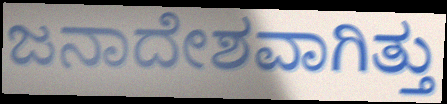
ಜನಾದೇಶವಾಗಿತ್ತು